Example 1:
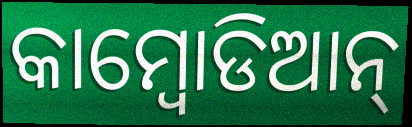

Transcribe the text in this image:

କାମ୍ବୋଡିଆନ୍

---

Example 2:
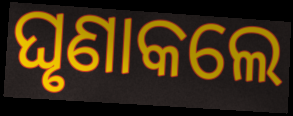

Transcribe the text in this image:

ଘୃଣାକଲେ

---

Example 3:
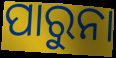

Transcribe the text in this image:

ପାରୁନା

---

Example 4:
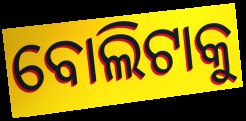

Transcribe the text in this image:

ବୋଲିଟାକୁ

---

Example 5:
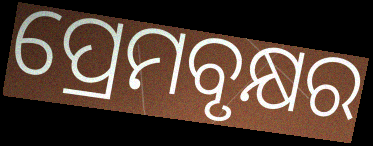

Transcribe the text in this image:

ପ୍ରେମବୃକ୍ଷର